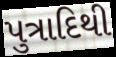
પુત્રાદિથી